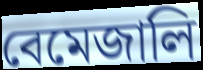
বেমেজালি